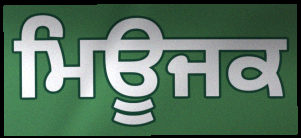
ਮਿਊਜਕ